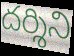
దర్శిని